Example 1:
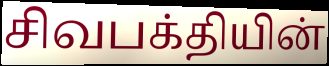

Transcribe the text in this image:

சிவபக்தியின்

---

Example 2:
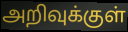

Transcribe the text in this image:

அறிவுக்குள்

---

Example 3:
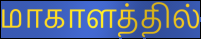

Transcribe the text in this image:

மாகாளத்தில்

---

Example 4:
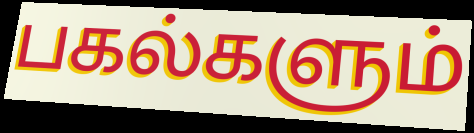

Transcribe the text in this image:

பகல்களும்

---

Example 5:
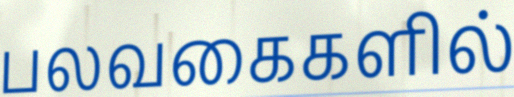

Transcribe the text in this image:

பலவகைகளில்